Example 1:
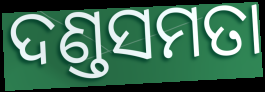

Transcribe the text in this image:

ଦଣ୍ଡସମତା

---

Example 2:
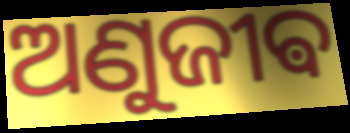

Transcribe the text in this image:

ଅଣୁଜୀଵ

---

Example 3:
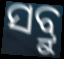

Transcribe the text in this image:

ସବ୍ରୁ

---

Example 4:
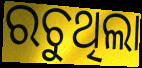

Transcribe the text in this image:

ରଚୁଥିଲା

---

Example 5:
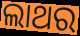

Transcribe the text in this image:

ଲାଥର